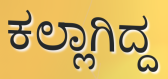
ಕಲ್ಲಾಗಿದ್ದ